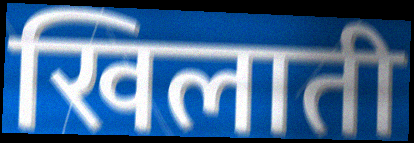
खिलाती